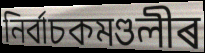
নিৰ্বাচকমণ্ডলীৰ